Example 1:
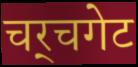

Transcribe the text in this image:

चर्चगेट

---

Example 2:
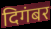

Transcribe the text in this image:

दिगंबर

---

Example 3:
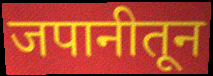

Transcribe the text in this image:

जपानीतून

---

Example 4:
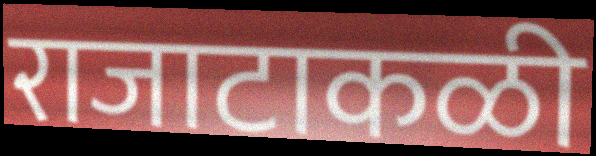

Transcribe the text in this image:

राजाटाकळी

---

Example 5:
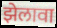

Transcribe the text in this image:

झेलावा